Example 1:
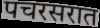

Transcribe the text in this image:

पचरसरात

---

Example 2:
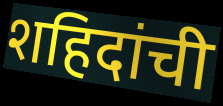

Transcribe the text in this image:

शहिदांची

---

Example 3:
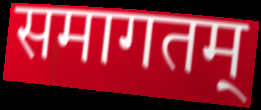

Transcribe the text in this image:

समागतम्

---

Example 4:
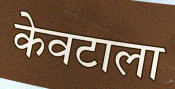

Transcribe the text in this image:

केवटाला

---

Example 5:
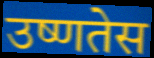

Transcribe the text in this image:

उष्णतेस